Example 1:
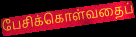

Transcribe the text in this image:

பேசிக்கொள்வதைப்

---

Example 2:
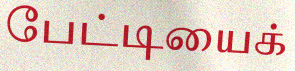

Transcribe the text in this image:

பேட்டியைக்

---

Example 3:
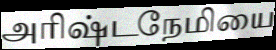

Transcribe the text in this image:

அரிஷ்டநேமியை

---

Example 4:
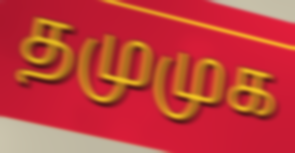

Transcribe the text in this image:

தமுமுக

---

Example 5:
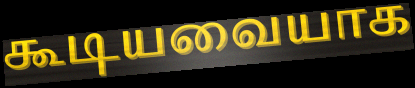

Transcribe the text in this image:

கூடியவையாக